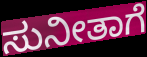
ಸುನೀತಾಗೆ